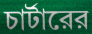
চার্টারের